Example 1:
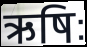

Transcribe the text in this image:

ऋषिः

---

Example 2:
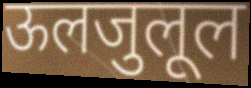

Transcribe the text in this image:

ऊलजुलूल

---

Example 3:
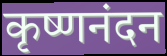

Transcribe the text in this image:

कृष्णनंदन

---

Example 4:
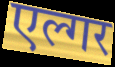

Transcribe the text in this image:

एल्गर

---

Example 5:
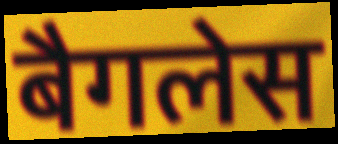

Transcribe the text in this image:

बैगलेस